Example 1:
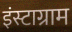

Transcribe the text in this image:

इंस्टाग्राम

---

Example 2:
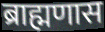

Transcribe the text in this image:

ब्राह्मणास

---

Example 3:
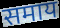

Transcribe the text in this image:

समाय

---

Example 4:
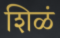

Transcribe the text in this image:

शिळं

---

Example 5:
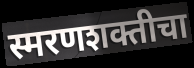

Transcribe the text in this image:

स्मरणशक्तीचा